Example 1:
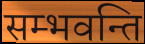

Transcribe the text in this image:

सम्भवन्ति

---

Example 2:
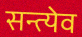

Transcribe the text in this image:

सन्त्येव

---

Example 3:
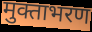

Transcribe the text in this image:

मुक्ताभरण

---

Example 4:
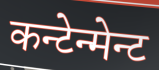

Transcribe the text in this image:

कन्टेन्मेन्ट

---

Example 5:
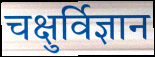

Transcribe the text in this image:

चक्षुर्विज्ञान